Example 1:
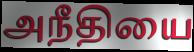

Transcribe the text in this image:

அநீதியை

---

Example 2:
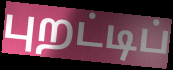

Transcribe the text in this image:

புறட்டிப்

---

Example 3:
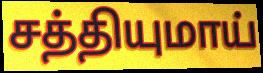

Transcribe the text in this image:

சத்தியுமாய்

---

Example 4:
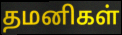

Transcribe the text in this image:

தமனிகள்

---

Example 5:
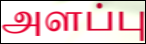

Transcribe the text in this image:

அளப்பு